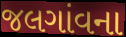
જલગાંવના